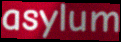
asylum